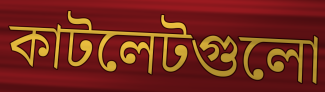
কাটলেটগুলো